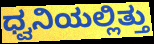
ಧ್ವನಿಯಲ್ಲಿತ್ತು